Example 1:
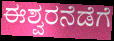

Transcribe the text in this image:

ಈಶ್ವರನೆಡೆಗೆ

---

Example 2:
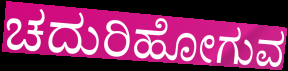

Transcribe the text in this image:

ಚದುರಿಹೋಗುವ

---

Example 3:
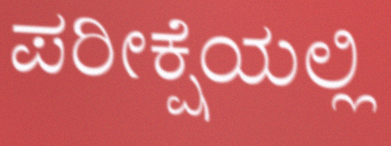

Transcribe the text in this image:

ಪರೀಕ್ಷೆಯಲ್ಲಿ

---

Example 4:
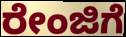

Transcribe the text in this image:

ರೇಂಜಿಗೆ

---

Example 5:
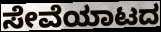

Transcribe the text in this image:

ಸೇವೆಯಾಟದ